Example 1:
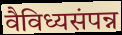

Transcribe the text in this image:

वैविध्यसंपन्न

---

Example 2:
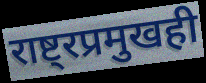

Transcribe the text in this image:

राष्ट्रप्रमुखही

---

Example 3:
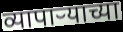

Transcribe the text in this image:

व्यापाऱ्याच्या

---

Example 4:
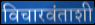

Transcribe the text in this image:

विचारवंताशी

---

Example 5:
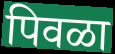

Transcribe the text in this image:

पिवळा